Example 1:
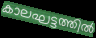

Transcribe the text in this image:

കാലഘട്ടത്തിൽ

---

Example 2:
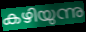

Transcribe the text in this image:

കഴിയുന്നു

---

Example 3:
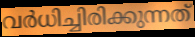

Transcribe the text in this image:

വർധിച്ചിരിക്കുന്നത്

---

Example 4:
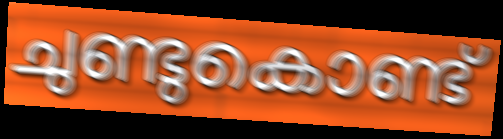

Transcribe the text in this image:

ചുണ്ടുകൊണ്ട്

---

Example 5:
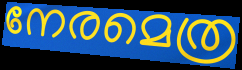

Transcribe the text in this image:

നേരമെത്ര